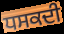
ਧਸਕਦੀ